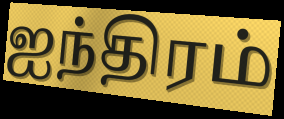
ஐந்திரம்